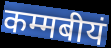
कम्मबीयं